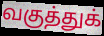
வகுத்துக்